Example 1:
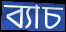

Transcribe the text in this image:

ব্যাচ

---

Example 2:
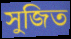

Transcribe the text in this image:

সুজিত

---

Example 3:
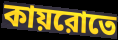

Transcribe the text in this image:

কায়রোতে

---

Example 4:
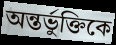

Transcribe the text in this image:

অন্তর্ভুক্তিকে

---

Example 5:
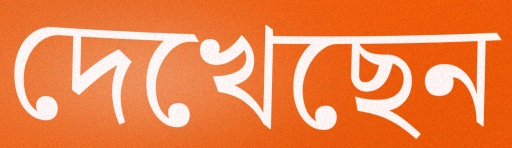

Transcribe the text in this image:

দেখেছেন